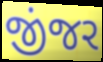
જીંજર